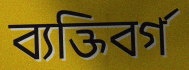
ব্যক্তিবর্গ